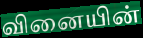
வினையின்